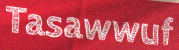
Tasawwuf